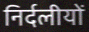
निर्दलीयों